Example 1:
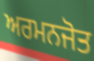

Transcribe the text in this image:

ਅਰਮਨਜੋਤ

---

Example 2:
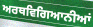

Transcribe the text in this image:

ਅਰਥਵਿਗਿਆਨੀਆਂ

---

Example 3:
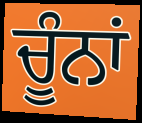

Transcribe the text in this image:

ਚੂੰਨਾਂ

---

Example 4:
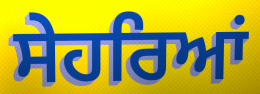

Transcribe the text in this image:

ਸੇਹਰਿਆਂ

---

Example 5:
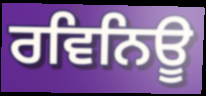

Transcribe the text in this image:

ਰਵਿਨਿਊ